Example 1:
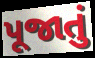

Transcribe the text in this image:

પૂજાતું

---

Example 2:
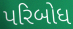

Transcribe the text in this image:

પરિબોધ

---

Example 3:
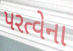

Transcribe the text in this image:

પરત્વેના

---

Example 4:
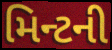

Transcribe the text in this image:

મિન્ટની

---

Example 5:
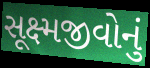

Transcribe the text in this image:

સૂક્ષ્મજીવોનું